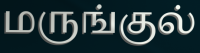
மருங்குல்